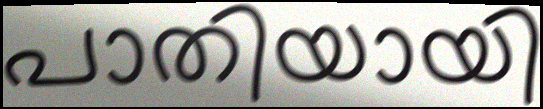
പാതിയായി